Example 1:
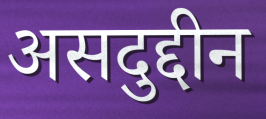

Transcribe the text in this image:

असदुद्दीन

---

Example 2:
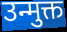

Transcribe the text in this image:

उन्मुक्त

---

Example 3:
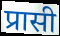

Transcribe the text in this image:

प्रासी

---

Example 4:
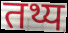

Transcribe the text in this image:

तथ्य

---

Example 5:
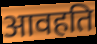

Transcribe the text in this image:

आवहति